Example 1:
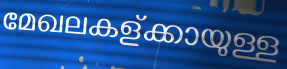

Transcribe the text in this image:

മേഖലകള്ക്കായുള്ള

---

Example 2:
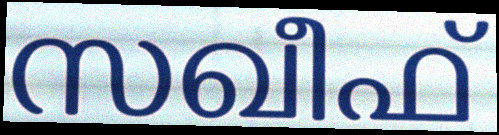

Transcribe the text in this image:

സഖീഫ്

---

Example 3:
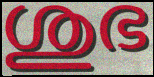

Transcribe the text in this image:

ശുഭ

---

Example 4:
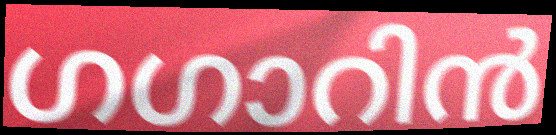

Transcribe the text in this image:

ഗഗാറിൻ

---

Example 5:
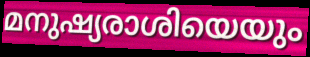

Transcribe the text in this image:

മനുഷ്യരാശിയെയും